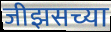
जीझसच्या